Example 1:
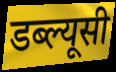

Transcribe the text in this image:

डब्ल्यूसी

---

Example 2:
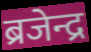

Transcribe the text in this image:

ब्रजेन्द्र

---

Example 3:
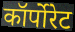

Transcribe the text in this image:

कॉर्पोरेट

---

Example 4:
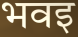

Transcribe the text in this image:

भवइ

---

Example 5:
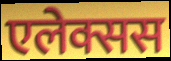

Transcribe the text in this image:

एलेक्सस